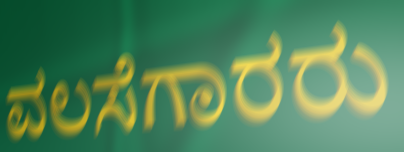
ವಲಸೆಗಾರರು